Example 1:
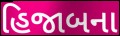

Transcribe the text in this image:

હિજાબના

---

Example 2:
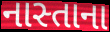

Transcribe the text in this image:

નાસ્તાના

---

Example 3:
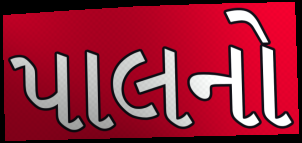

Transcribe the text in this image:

પાલનો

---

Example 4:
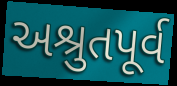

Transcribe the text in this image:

અશ્રુતપૂર્વ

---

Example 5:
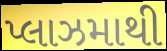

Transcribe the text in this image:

પ્લાઝમાથી